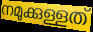
നമുക്കുള്ളത്